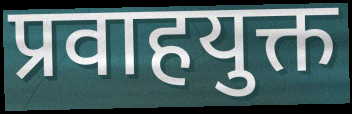
प्रवाहयुक्त